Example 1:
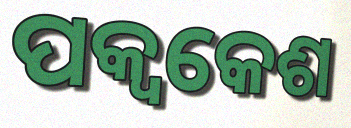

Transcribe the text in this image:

ପକ୍ଵକେଶ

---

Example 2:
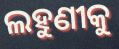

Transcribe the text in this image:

ଲହୁଣୀକୁ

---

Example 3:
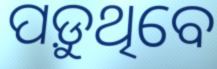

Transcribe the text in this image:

ପଡ଼ୁଥିବେ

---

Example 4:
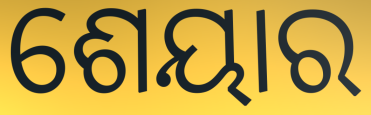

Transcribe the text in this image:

ଶେୟାର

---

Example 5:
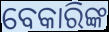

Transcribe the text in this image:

ବେକାରିଙ୍କ